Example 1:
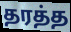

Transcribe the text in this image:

தரத்த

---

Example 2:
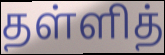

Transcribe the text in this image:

தள்ளித்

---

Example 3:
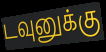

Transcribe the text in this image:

டவுனுக்கு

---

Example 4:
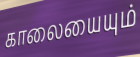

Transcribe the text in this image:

காலையையும்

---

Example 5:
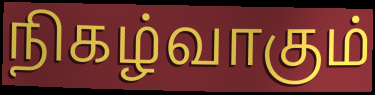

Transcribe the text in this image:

நிகழ்வாகும்